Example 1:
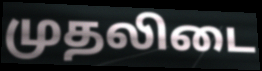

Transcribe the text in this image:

முதலிடை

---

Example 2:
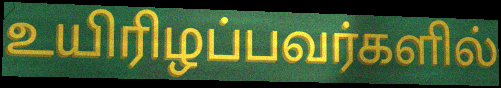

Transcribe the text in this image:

உயிரிழப்பவர்களில்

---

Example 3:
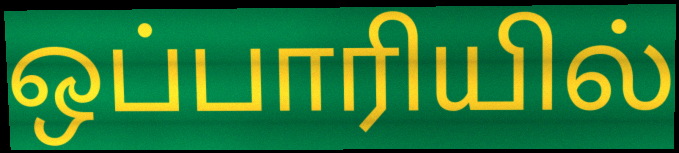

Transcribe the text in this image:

ஒப்பாரியில்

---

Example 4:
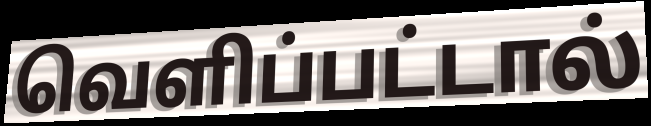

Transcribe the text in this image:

வெளிப்பட்டால்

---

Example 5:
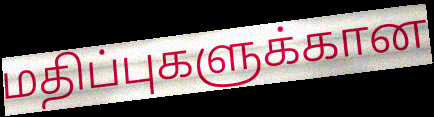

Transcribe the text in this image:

மதிப்புகளுக்கான